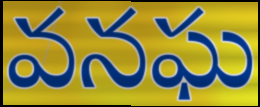
వనఘ